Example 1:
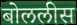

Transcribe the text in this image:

बोललीस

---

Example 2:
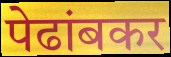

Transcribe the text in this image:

पेढांबकर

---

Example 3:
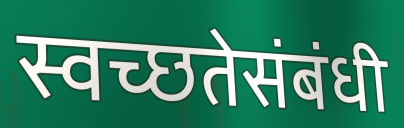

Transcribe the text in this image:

स्वच्छतेसंबंधी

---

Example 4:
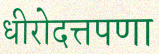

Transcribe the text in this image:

धीरोदत्तपणा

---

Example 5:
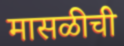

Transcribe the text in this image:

मासळीची